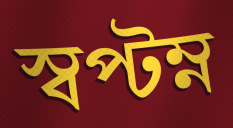
স্বপ্টম্ন